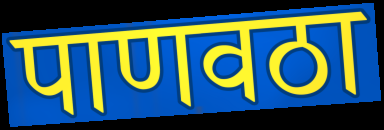
पाणवठा